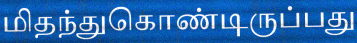
மிதந்துகொண்டிருப்பது